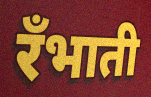
रँभाती